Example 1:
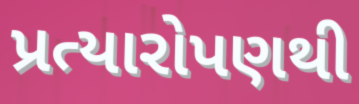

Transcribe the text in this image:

પ્રત્યારોપણથી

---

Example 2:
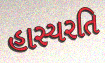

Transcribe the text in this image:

હાસ્યરતિ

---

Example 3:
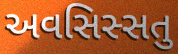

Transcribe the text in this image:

અવસિસ્સતુ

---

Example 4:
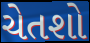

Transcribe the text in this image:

ચેતશો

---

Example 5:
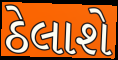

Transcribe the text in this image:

ઠેલાશે